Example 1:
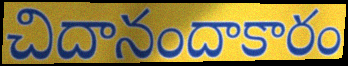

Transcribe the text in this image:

చిదానందాకారం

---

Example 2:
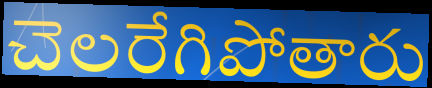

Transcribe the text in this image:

చెలరేగిపోతారు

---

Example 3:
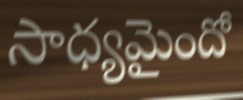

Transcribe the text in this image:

సాధ్యమైందో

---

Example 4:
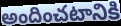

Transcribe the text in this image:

అందించటానికి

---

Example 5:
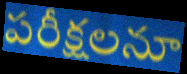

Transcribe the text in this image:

పరీక్షలనూ